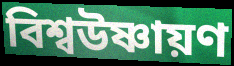
বিশ্বউষ্ণায়ণ